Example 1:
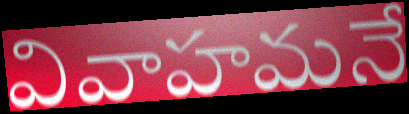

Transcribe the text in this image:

వివాహమనే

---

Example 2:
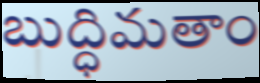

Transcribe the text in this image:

బుద్ధిమతాం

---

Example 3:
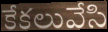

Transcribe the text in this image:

కేకలువేసి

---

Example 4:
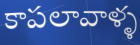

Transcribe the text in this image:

కాపలావాళ్ళ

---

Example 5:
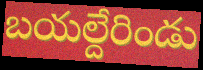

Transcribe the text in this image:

బయల్దేరిండు